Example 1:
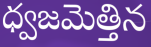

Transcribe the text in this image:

ధ్వజమెత్తిన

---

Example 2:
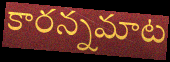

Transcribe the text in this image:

కారన్నమాట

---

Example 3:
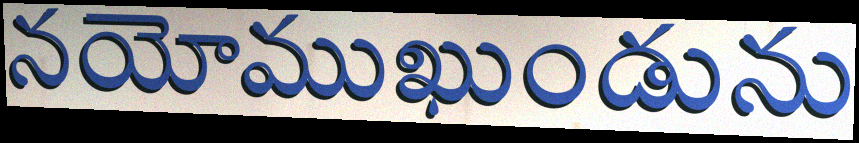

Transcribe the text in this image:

నయోముఖుండును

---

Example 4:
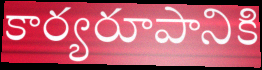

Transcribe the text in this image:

కార్యరూపానికి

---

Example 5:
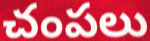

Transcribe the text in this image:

చంపలు